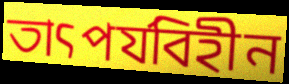
তাৎপর্যবিহীন